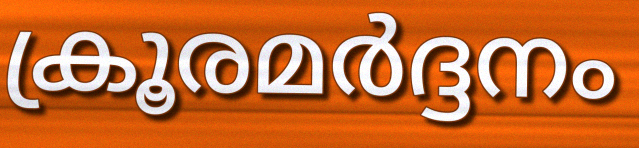
ക്രൂരമർദ്ദനം